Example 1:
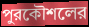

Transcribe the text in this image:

পুরকৌশলের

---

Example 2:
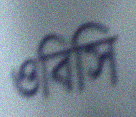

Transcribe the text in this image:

ওবিসি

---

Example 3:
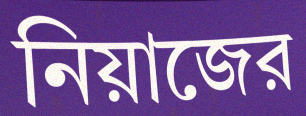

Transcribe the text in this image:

নিয়াজের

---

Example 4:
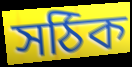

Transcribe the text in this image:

সঠিক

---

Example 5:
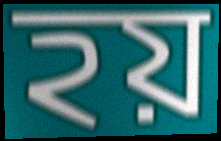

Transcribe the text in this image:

হয়